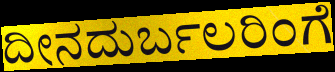
ದೀನದುರ್ಬಲರಿಂಗೆ